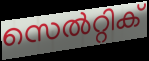
സെൽറ്റിക്